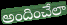
అందించేలా